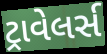
ટ્રાવેલર્સ